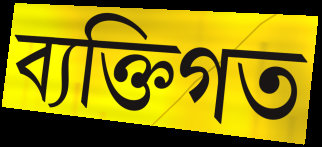
ব্যক্তিগত